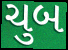
ચુબ